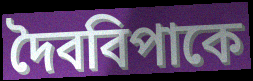
দৈববিপাকে